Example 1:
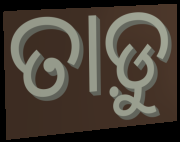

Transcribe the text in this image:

ତାଡ଼ୁ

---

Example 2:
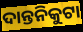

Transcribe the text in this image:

ଦାନ୍ତନିକୁଟା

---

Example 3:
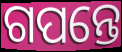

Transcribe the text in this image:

ଗପନ୍ତେ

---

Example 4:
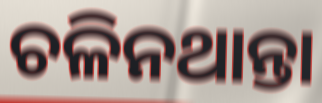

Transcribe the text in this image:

ଚଳିନଥାନ୍ତା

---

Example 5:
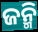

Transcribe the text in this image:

ଜନ୍ମି